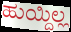
ಹುಯ್ದಿಲ್ಲ